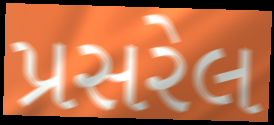
પ્રસરેલ